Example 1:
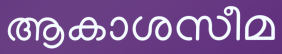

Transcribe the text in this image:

ആകാശസീമ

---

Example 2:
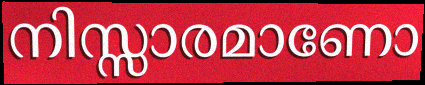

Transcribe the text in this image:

നിസ്സാരമാണോ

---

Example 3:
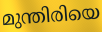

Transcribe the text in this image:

മുന്തിരിയെ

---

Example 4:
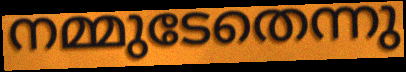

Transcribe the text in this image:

നമ്മുടേതെന്നു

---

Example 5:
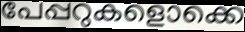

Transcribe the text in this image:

പേപ്പറുകളൊക്കെ